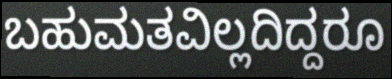
ಬಹುಮತವಿಲ್ಲದಿದ್ದರೂ